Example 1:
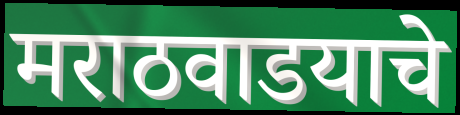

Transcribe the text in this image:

मराठवाडयाचे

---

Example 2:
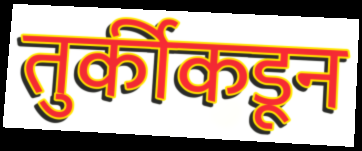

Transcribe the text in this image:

तुर्कीकडून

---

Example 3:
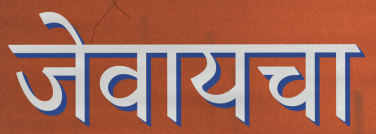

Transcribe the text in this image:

जेवायचा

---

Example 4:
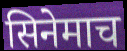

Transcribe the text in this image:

सिनेमाच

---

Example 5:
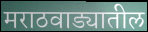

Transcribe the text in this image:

मराठवाड्यातील